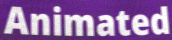
Animated